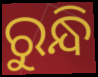
ରୁନ୍ଧି